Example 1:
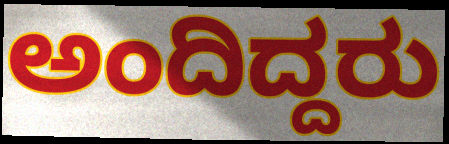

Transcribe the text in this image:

ಅಂದಿದ್ದರು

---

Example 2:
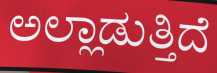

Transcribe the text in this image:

ಅಲ್ಲಾಡುತ್ತಿದೆ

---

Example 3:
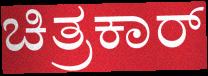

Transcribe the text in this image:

ಚಿತ್ರಕಾರ್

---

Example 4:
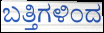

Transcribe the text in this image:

ಬತ್ತಿಗಳಿಂದ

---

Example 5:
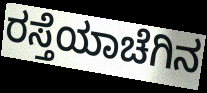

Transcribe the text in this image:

ರಸ್ತೆಯಾಚೆಗಿನ